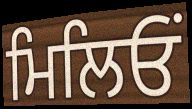
ਮਿਲਿਓਂ